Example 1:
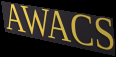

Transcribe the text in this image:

AWACS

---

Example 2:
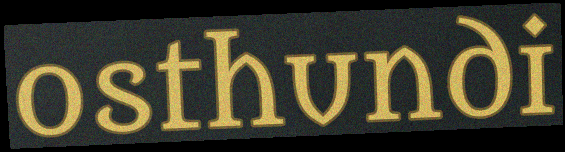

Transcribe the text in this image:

osthundi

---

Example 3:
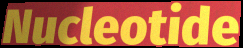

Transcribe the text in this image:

Nucleotide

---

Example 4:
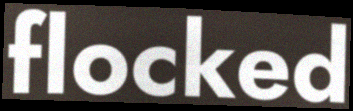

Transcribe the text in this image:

flocked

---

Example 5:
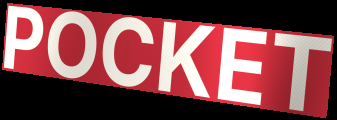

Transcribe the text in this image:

POCKET